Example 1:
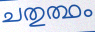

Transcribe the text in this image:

ചതുത്ഥം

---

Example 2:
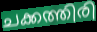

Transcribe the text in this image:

ചക്കത്തിരി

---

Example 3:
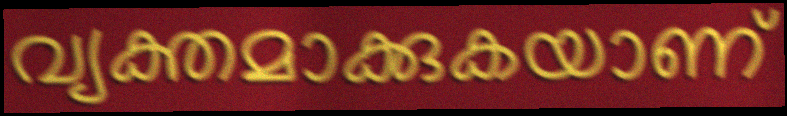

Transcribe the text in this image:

വ്യക്തമാക്കുകയാണ്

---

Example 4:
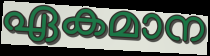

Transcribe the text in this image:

ഏകമാന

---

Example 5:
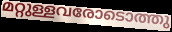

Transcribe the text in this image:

മറ്റുള്ളവരോടൊത്തു